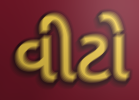
વીટો